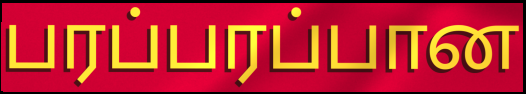
பரப்பரப்பான